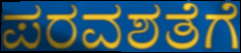
ಪರವಶತೆಗೆ